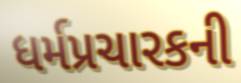
ધર્મપ્રચારકની